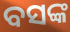
ବସଙ୍କ